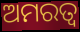
ଅମରତ୍ଵ